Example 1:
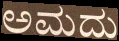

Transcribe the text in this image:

ಅಮದು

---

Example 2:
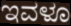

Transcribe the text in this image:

ಇವಳೂ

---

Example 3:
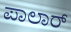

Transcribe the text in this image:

ಪಾಲಾರ್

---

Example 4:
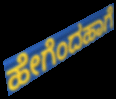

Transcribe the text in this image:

ಹೇಗೆಂದಹಾಗೆ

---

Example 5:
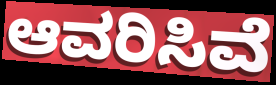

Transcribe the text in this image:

ಆವರಿಸಿವೆ